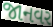
જાનવર